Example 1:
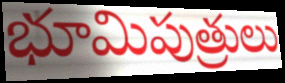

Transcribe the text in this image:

భూమిపుత్రులు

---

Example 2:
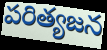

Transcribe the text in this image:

పరిత్యజన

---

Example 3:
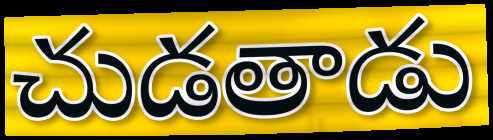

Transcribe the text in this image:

చుడతాడు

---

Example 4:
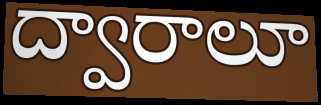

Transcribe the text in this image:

ద్వారాలూ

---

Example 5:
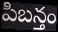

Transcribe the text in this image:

పిబన్తం